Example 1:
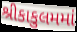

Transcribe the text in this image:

શ્રીકાકુલમમાં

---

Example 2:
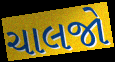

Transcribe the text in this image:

ચાલજો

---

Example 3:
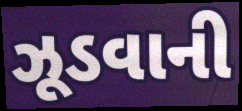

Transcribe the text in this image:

ઝૂડવાની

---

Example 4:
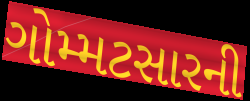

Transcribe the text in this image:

ગોમ્મટસારની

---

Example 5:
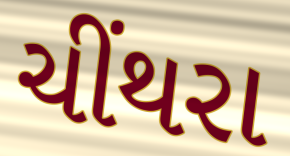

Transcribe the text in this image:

ચીંથરા